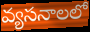
వ్యసనాలలో